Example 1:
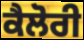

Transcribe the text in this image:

ਕੈਲੋਰੀ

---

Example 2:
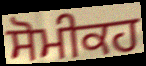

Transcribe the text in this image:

ਸੋਮੀਕਹ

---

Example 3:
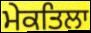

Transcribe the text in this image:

ਮੇਕਤਿਲਾ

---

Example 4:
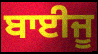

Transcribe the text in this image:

ਬਾਈਜੂ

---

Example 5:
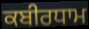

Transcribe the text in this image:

ਕਬੀਰਧਾਮ